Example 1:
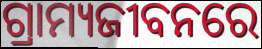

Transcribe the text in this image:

ଗ୍ରାମ୍ୟଜୀବନରେ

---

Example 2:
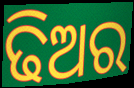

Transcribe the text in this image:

ଢିଅର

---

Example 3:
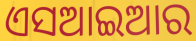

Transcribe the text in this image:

ଏସଆଇଆର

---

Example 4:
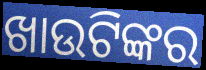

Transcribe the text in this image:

ଖାଉଟିଙ୍କର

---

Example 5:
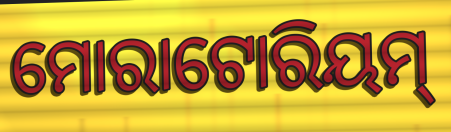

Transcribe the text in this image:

ମୋରାଟୋରିୟମ୍